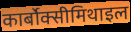
कार्बोक्सीमिथाइल